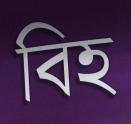
বিহ